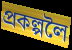
প্ৰকল্পলৈ